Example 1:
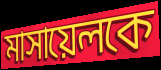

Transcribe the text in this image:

মাসায়েলকে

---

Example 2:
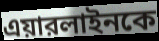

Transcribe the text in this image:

এয়ারলাইনকে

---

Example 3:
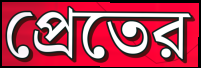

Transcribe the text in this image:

প্রেতের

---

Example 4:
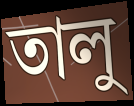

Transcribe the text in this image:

তালু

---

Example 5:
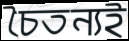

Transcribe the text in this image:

চৈতন্যই